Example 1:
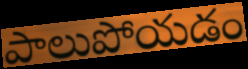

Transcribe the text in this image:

పాలుపోయడం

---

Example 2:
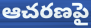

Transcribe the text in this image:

ఆచరణపై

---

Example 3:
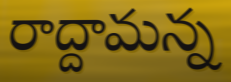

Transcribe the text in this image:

రాద్దామన్న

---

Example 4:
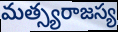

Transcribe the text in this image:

మత్స్యరాజస్య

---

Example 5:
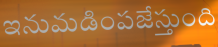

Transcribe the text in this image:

ఇనుమడింపజేస్తుంది